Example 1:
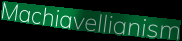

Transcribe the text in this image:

Machiavellianism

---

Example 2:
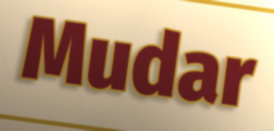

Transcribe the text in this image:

Mudar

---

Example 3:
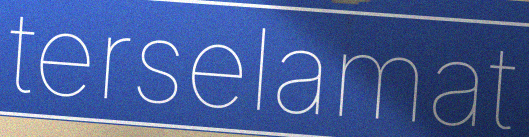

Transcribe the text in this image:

terselamat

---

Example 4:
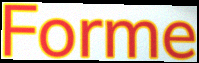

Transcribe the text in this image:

Forme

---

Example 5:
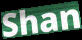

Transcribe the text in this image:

Shan